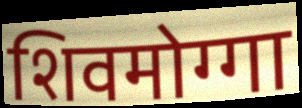
शिवमोग्गा